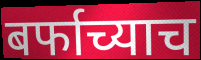
बर्फाच्याच